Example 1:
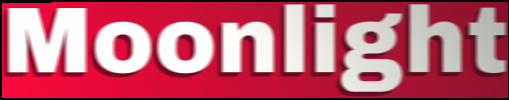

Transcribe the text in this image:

Moonlight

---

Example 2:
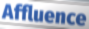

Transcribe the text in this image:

Affluence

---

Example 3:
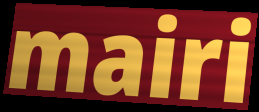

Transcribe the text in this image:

mairi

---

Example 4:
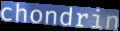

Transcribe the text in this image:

chondrin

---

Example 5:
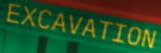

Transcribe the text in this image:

EXCAVATION